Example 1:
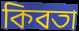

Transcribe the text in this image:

কিবতা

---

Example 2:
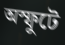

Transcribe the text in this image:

অস্ফুটে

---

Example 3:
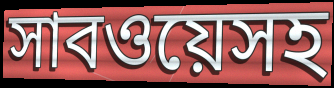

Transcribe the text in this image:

সাবওয়েসহ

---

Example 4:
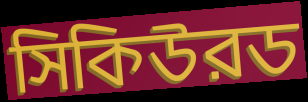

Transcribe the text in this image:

সিকিউরড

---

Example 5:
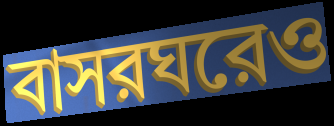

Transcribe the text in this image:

বাসরঘরেও